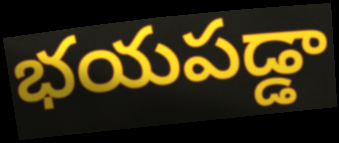
భయపడ్డా